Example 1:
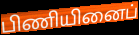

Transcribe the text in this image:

பிணியினைப்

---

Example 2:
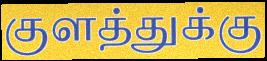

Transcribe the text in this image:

குளத்துக்கு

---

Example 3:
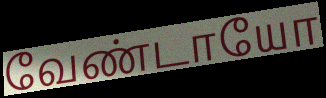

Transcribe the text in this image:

வேண்டாயோ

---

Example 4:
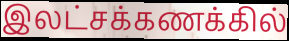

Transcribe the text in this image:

இலட்சக்கணக்கில்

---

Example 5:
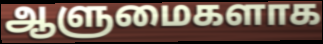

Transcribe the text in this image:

ஆளுமைகளாக